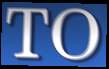
TO